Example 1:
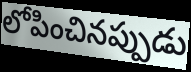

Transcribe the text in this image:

లోపించినప్పుడు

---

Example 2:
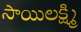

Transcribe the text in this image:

సాయిలక్ష్మి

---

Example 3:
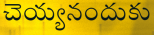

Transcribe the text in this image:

చెయ్యనందుకు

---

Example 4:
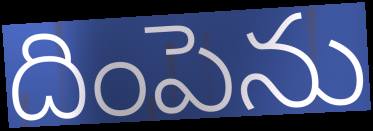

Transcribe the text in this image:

దింపెను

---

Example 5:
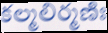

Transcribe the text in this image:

కల్మలిర్మణిః